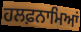
ਹਲਫ਼ਨਾਮਿਆਂ